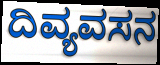
ದಿವ್ಯವಸನ